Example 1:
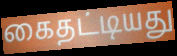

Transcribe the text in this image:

கைதட்டியது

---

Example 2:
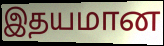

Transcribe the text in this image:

இதயமான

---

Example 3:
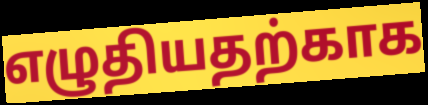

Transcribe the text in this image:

எழுதியதற்காக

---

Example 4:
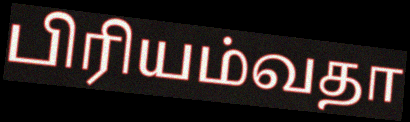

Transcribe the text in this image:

பிரியம்வதா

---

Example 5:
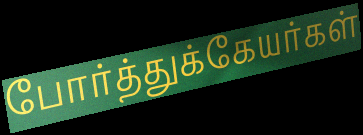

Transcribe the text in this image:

போர்த்துக்கேயர்கள்